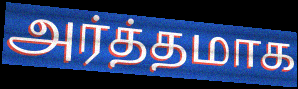
அர்த்தமாக